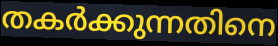
തകർക്കുന്നതിനെ